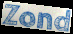
Zond